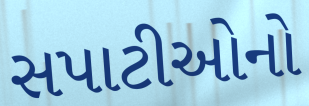
સપાટીઓનો